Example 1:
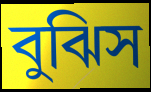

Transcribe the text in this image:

বুঝিস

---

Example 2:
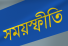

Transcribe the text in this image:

সময়স্ফীতি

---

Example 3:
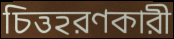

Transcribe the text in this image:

চিত্তহরণকারী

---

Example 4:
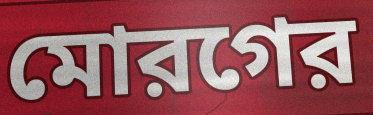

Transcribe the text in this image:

মোরগের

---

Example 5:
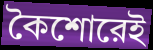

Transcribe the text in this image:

কৈশোরেই